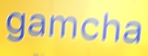
gamcha